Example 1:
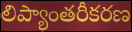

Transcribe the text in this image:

లిప్యాంతరీకరణ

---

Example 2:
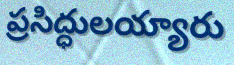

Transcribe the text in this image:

ప్రసిద్ధులయ్యారు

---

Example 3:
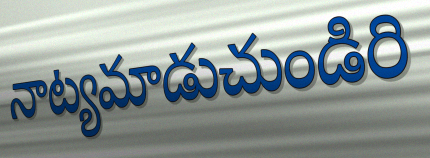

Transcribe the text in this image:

నాట్యమాడుచుండిరి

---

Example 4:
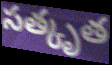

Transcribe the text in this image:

సత్కృత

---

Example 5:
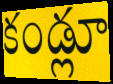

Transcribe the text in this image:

కండ్లూ